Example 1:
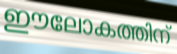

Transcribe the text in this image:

ഈലോകത്തിന്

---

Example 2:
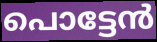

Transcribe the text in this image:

പൊട്ടേൻ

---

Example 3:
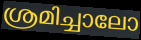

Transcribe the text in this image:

ശ്രമിച്ചാലോ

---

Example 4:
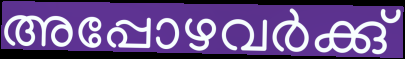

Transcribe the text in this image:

അപ്പോഴവർക്കു്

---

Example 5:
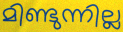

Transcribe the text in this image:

മിണ്ടുന്നില്ല